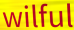
wilful